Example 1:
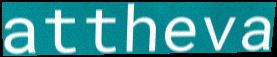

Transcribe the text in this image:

attheva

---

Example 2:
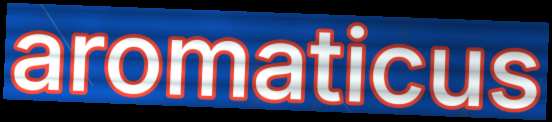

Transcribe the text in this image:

aromaticus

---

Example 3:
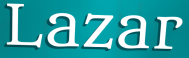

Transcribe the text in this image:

Lazar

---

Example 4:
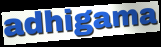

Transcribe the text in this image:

adhigama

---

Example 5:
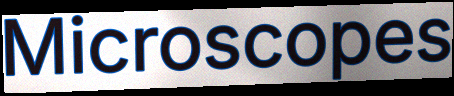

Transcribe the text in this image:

Microscopes